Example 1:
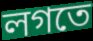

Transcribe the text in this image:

লগতে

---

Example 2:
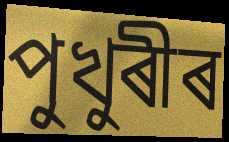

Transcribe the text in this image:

পুখুৰীৰ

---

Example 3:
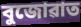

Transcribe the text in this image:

বুজোৱাত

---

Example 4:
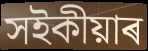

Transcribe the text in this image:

সইকীয়াৰ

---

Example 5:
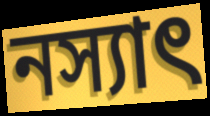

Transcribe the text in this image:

নস্যাৎ